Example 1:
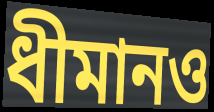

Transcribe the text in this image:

ধীমানও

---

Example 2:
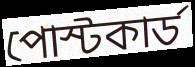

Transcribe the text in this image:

পোস্টকার্ড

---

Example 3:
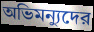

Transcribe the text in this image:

অভিমন্যুদের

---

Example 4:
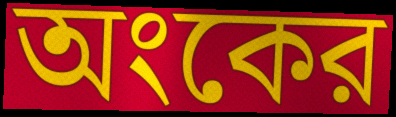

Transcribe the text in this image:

অংকের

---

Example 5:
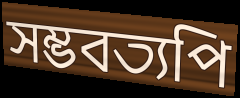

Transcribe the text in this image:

সম্ভবত্যপি